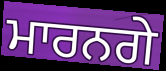
ਮਾਰਨਗੇ